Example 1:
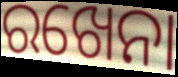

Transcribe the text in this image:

ରଖେନା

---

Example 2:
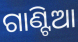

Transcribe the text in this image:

ଗାଣ୍ଟିଆ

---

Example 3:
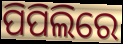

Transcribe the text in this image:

ପିପିଲିରେ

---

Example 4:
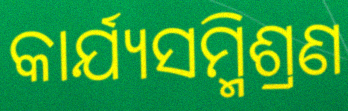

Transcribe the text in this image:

କାର୍ଯ୍ୟସମ୍ମିଶ୍ରଣ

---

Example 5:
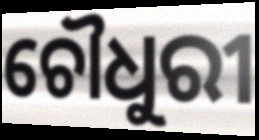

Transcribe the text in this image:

ଚୌଧୁରୀ